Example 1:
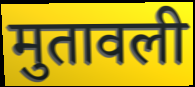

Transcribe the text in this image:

मुतावली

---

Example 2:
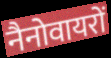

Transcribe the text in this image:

नैनोवायरों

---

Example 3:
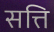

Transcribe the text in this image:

सत्ति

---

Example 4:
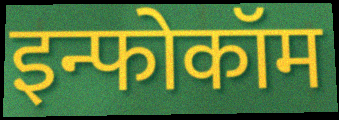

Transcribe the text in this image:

इन्फोकॉम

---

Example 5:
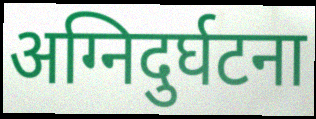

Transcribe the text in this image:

अग्निदुर्घटना